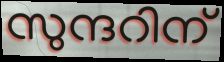
സുന്ദറിന്